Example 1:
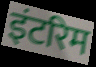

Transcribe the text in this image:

इंटरिम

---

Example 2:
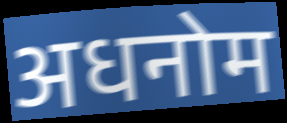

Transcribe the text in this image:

अधनोम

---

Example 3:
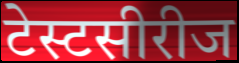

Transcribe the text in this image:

टेस्टसीरीज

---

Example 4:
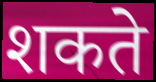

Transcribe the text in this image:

शकते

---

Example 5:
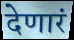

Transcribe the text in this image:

देणारं